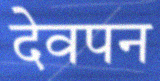
देवपन